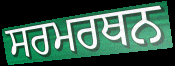
ਸਰਮਰਥਨ